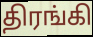
திரங்கி